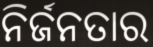
ନିର୍ଜନତାର